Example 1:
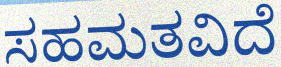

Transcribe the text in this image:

ಸಹಮತವಿದೆ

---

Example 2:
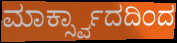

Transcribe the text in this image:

ಮಾರ್ಕ್ಸ್ವಾದದಿಂದ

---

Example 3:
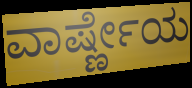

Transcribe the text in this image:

ವಾರ್ಷ್ಣೇಯ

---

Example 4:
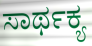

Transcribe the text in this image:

ಸಾರ್ಥಕ್ಯ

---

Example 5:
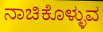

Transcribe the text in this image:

ನಾಚಿಕೊಳ್ಳುವ